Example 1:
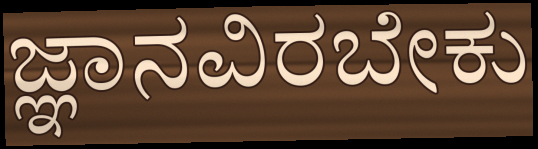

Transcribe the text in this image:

ಜ್ಞಾನವಿರಬೇಕು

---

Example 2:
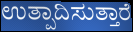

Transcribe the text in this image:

ಉತ್ಪಾದಿಸುತ್ತಾರೆ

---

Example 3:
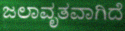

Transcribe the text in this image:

ಜಲಾವೃತವಾಗಿದೆ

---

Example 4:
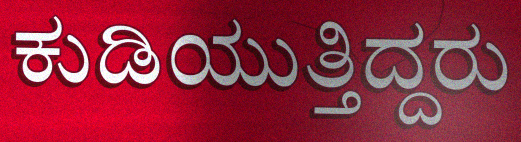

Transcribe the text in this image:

ಕುಡಿಯುತ್ತಿದ್ದರು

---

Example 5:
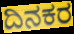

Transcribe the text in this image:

ದಿನಕರ